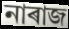
নাৰাজ